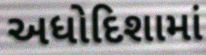
અધોદિશામાં